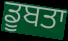
ਡੂਬਤਾ